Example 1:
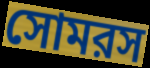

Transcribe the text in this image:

সোমরস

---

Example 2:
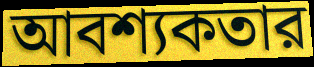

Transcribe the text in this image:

আবশ্যকতার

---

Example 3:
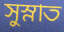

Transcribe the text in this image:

সুস্নাত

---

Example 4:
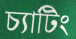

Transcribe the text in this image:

চ্যাটিং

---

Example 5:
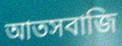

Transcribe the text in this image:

আতসবাজি